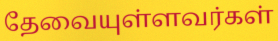
தேவையுள்ளவர்கள்